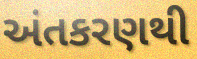
અંતકરણથી